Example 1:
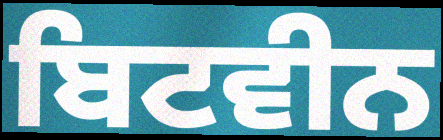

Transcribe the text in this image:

ਬਿਟਵੀਨ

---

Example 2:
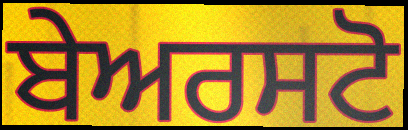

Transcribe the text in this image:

ਬੇਅਰਸਟੋ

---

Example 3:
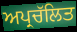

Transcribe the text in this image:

ਅਪ੍ਰਚੱਲਿਤ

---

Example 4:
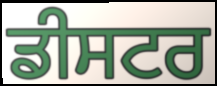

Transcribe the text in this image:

ਡੀਸਟਰ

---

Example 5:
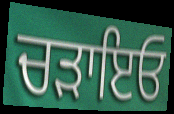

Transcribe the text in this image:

ਚੜਾਇਓ